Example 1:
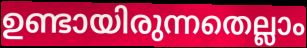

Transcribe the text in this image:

ഉണ്ടായിരുന്നതെല്ലാം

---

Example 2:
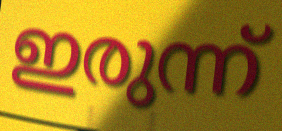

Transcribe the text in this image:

ഇരുന്ന്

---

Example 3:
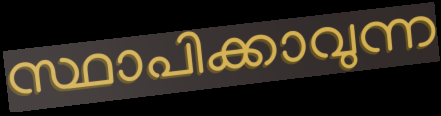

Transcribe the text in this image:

സ്ഥാപിക്കാവുന്ന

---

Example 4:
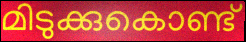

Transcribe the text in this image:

മിടുക്കുകൊണ്ട്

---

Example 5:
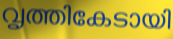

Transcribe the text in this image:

വൃത്തികേടായി